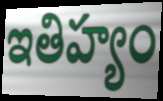
ఇతిహ్యం